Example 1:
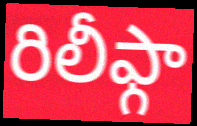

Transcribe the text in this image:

రిలీఫ్గా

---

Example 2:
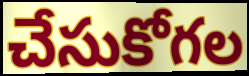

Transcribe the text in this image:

చేసుకోగల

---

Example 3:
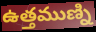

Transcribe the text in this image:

ఉత్తముణ్ని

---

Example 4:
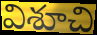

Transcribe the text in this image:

విశూచి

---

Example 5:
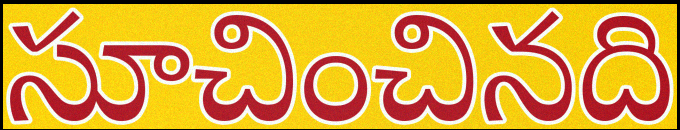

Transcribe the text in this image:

సూచించినది